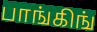
பாங்கிங்